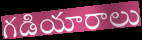
గడియారాలు